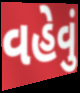
વહેવું